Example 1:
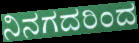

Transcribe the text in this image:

ನಿನಗದರಿಂದ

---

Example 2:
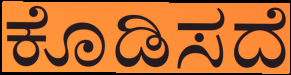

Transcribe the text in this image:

ಕೊಡಿಸದೆ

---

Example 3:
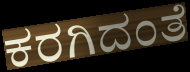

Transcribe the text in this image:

ಕರಗಿದಂತೆ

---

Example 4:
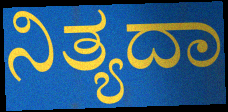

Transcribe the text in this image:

ನಿತ್ಯದಾ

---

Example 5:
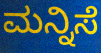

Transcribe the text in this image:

ಮನ್ನಿಸೆ